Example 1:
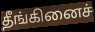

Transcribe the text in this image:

தீங்கினைச்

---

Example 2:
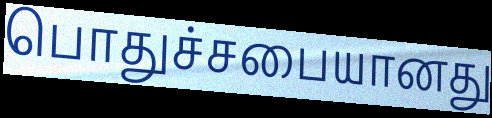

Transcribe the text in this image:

பொதுச்சபையானது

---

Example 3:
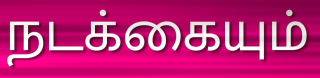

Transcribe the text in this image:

நடக்கையும்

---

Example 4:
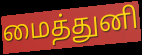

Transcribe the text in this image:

மைத்துனி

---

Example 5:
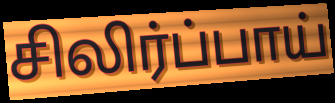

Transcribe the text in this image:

சிலிர்ப்பாய்